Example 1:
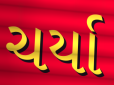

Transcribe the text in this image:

ચર્યા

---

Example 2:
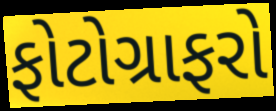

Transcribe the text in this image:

ફોટોગ્રાફરો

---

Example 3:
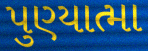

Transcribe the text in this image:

પુણ્યાત્મા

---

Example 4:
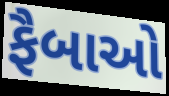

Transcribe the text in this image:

ફૈબાઓ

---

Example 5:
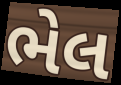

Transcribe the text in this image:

ભેલ